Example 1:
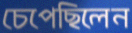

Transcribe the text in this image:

চেপেছিলেন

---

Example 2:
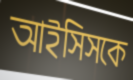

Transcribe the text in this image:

আইসিসকে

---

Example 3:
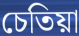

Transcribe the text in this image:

চেতিয়া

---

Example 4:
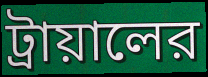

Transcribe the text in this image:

ট্রায়ালের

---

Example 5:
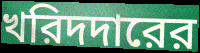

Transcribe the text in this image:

খরিদদারের